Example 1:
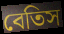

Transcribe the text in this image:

বেতিস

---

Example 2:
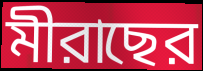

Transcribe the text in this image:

মীরাছের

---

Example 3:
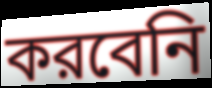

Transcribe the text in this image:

করবেনি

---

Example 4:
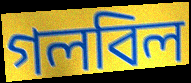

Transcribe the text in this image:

গলবিল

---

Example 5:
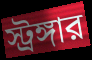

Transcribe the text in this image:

স্ট্রঙ্গার